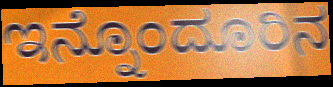
ಇನ್ನೊಂದೂರಿನ